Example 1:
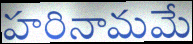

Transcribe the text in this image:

హరినామమే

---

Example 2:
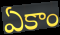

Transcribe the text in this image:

ఏకాం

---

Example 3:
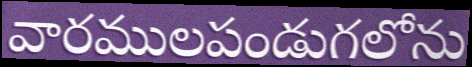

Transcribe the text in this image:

వారములపండుగలోను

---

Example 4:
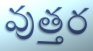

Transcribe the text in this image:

వుత్తర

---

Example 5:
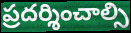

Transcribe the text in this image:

ప్రదర్శించాల్సి